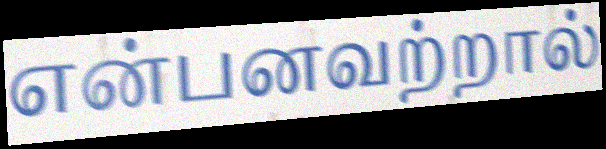
என்பனவற்றால்